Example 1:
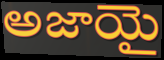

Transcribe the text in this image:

అజాయై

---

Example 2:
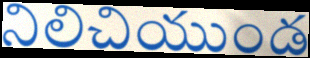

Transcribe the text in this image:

నిలిచియుండ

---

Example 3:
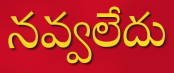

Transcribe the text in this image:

నవ్వలేదు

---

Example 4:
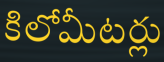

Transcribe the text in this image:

కిలోమీటర్లు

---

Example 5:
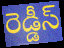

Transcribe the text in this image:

రెడ్డీస్